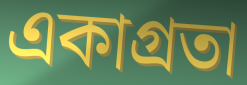
একাগ্রতা